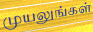
முயலுங்கள்